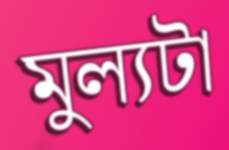
মুল্যটা